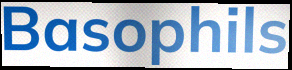
Basophils